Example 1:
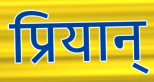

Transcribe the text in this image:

प्रियान्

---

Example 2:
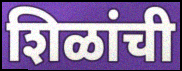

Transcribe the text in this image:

शिळांची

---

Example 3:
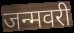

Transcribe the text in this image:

जन्मवरी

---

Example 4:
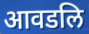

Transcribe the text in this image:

आवडलि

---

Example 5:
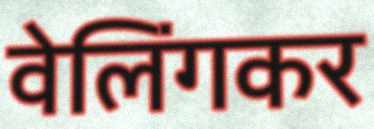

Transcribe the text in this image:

वेलिंगकर